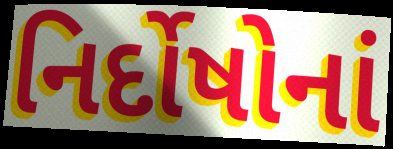
નિર્દોષોનાં